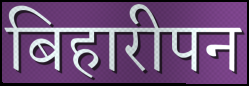
बिहारीपन